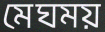
মেঘময়